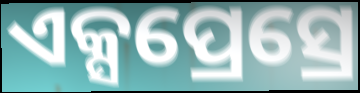
ଏକ୍ସପ୍ରେସ୍ରେ